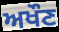
ਅਖੌਣ